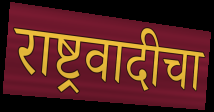
राष्ट्रवादीचा